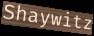
Shaywitz